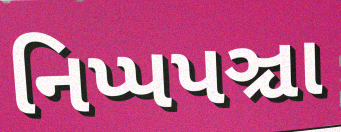
નિપ્પપઞ્ચા